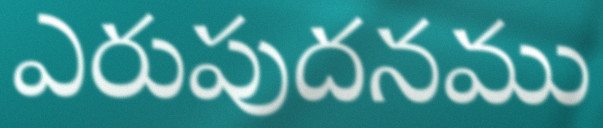
ఎరుపుదనము